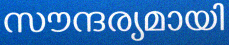
സൗന്ദര്യമായി